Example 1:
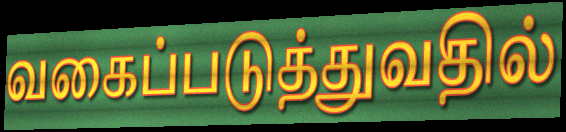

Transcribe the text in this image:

வகைப்படுத்துவதில்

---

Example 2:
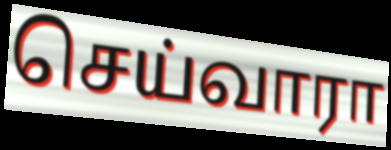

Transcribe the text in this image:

செய்வாரா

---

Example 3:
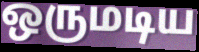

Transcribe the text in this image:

ஒருமடிய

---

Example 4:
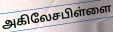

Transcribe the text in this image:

அகிலேசபிள்ளை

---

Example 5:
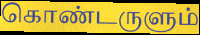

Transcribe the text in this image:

கொண்டருளும்